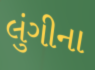
લુંગીના